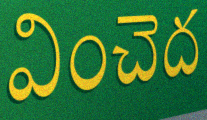
వించెద